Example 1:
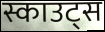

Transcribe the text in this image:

स्काउट्स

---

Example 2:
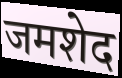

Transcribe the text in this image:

जमशेद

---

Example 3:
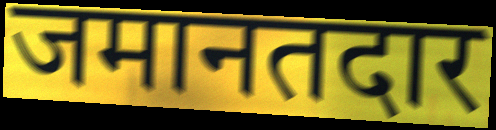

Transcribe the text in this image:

जमानतदार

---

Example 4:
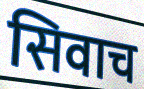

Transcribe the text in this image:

सिवाच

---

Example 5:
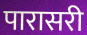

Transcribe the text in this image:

पारासरी